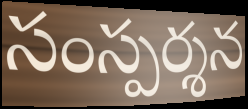
సంస్పర్శన